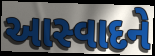
આસ્વાદને